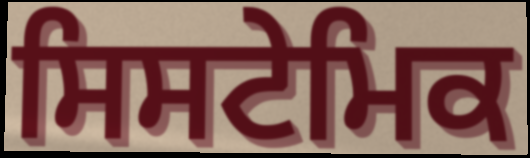
ਸਿਸਟੇਮਿਕ